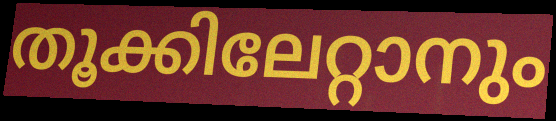
തൂക്കിലേറ്റാനും